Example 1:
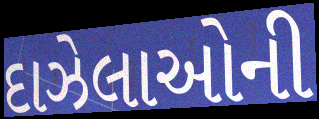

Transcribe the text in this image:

દાઝેલાઓની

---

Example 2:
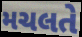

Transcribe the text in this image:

મચલતે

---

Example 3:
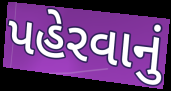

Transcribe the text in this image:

પહેરવાનું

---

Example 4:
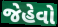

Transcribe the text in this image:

જેહેવો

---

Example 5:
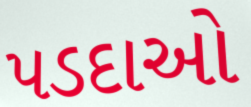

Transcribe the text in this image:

પડદાઓ